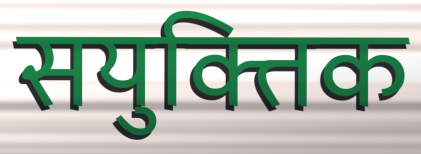
सयुक्तिक